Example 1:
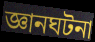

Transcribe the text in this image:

জ্ঞানঘটনা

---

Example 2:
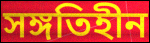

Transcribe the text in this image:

সঙ্গতিহীন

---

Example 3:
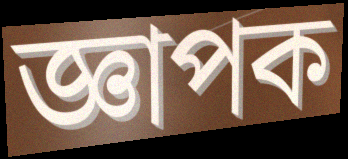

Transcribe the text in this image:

জ্ঞাপক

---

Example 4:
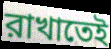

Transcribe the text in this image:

রাখাতেই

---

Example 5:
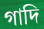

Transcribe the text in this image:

গাদি